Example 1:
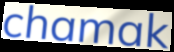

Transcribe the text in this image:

chamak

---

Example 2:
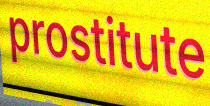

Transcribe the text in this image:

prostitute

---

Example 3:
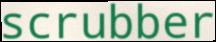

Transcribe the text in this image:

scrubber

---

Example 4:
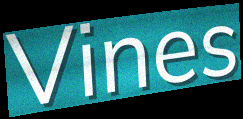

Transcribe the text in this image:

Vines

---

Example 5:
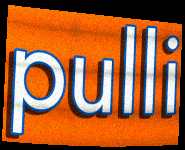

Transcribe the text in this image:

pulli